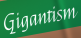
Gigantism